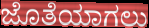
ಜೊತೆಯಾಗಲು